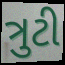
ત્રુટી